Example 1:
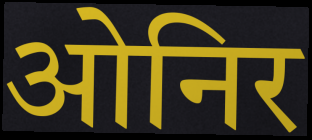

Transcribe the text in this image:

ओनिर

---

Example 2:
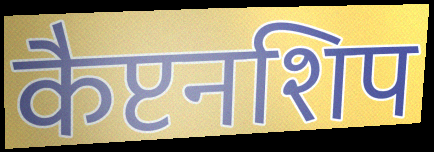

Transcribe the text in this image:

कैप्टनशिप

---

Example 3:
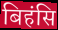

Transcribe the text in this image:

बिहंसि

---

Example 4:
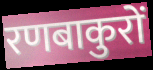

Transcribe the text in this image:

रणबाकुरों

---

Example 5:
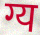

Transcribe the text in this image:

ग्य